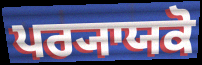
ਪਰ੍ਯਾਯਕੋ